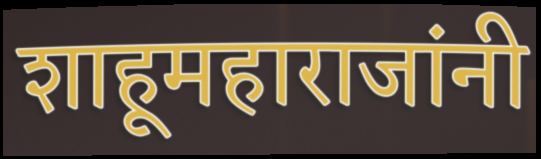
शाहूमहाराजांनी